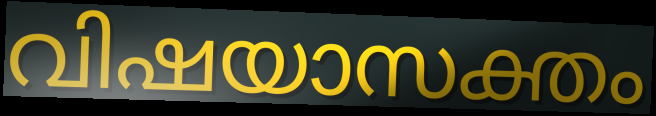
വിഷയാസക്തം